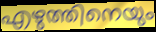
എഴുത്തിനെയും